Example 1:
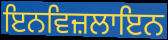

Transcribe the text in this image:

ਇਨਵਿਜ਼ਲਾਇਨ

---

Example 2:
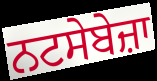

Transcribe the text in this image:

ਨਟਸੇਬੇਜ਼ਾ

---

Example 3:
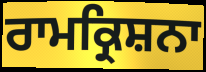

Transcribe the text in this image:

ਰਾਮਕ੍ਰਿਸ਼ਨਾ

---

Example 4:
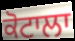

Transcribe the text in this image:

ਕੋਟਾਲਾ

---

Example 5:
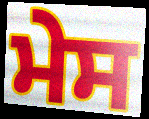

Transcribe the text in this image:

ਮੇਸ